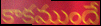
కాకముందే